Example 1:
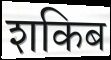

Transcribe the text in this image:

शकिब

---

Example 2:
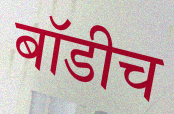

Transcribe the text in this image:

बॉडीच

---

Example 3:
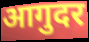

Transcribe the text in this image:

आगुदर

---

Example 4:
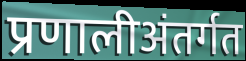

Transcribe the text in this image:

प्रणालीअंतर्गत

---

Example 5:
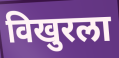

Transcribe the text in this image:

विखुरला